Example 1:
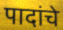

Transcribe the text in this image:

पादांचे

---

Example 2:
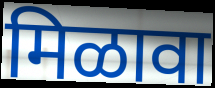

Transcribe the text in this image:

मिळावा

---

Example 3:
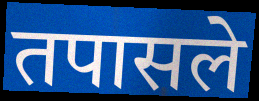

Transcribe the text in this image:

तपासले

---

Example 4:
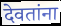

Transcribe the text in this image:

देवतांना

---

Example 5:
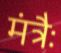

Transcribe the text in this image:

मंत्रैः